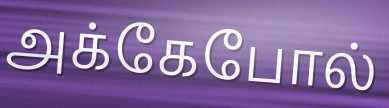
அக்கேபோல்